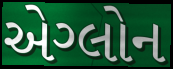
એગ્લોન